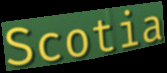
Scotia